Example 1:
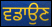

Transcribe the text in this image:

ਵਡਾਉਣ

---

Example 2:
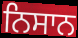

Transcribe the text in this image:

ਨਿਸਾਨ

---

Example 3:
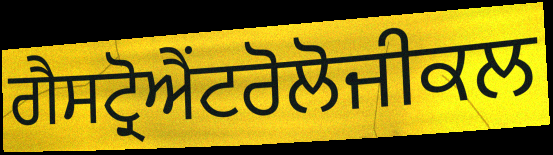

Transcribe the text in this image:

ਗੈਸਟ੍ਰੋਐਂਟਰੋਲੋਜੀਕਲ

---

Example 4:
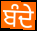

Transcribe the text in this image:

ਬੰਦੇ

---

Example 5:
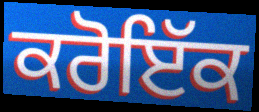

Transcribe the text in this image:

ਕਰੋਇੱਕ